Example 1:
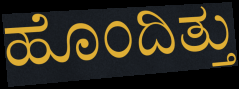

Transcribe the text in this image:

ಹೊಂದಿತ್ತು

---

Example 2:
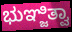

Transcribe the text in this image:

ಭುಞ್ಜಿತ್ವಾ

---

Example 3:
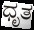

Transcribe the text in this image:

ಧೃತ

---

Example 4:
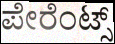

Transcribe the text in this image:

ಪೇರೆಂಟ್ಸ್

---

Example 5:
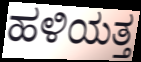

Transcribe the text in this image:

ಹಳಿಯತ್ತ